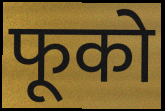
फूको